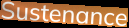
Sustenance